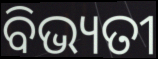
ବିଭ୍ୟତୀ